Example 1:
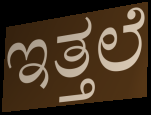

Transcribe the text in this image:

ಇತ್ತಲೆ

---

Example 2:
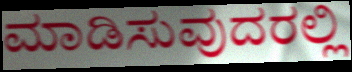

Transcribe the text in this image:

ಮಾಡಿಸುವುದರಲ್ಲಿ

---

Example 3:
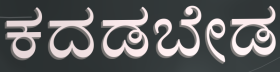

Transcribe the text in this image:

ಕದಡಬೇಡ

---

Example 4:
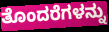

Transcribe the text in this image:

ತೊಂದರೆಗಳನ್ನು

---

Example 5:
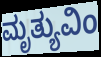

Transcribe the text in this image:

ಮೃತ್ಯುವಿಂ